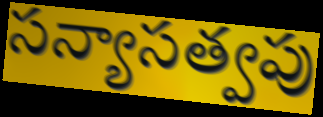
సన్యాసత్వపు